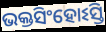
ଭକ୍ତସିଂହୋଽସ୍ତି